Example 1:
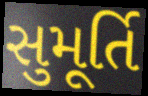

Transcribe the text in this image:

સુમૂર્તિ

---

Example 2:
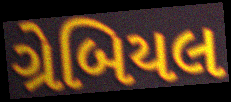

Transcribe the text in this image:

ગ્રેબિયલ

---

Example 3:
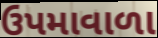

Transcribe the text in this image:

ઉપમાવાળા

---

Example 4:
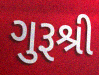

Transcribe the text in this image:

ગુરૂશ્રી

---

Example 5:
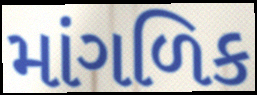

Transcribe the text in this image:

માંગળિક